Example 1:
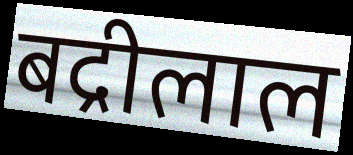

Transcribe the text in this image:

बद्रीलाल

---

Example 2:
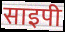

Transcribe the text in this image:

साइपी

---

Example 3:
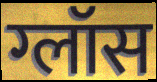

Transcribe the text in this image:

ग्लॉस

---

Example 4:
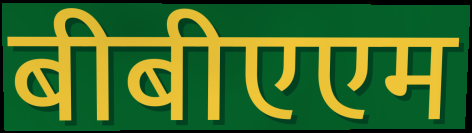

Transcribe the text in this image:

बीबीएएम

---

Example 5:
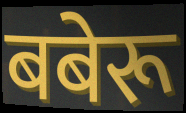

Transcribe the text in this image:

बबेरू